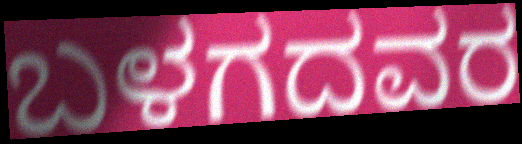
ಬಳಗದವರ